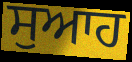
ਸੁਆਹ